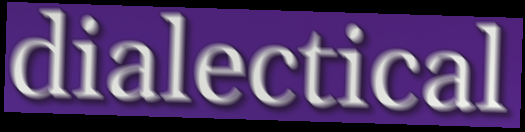
dialectical